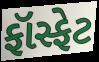
ફૉસ્ફેટ